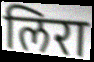
लिरा